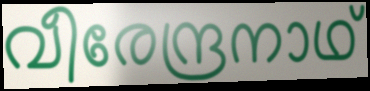
വീരേന്ദ്രനാഥ്